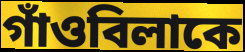
গাঁওবিলাকে